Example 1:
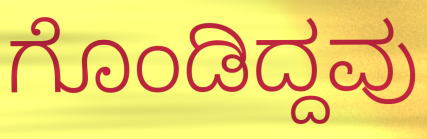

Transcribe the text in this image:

ಗೊಂಡಿದ್ದವು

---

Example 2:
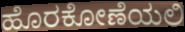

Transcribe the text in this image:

ಹೊರಕೋಣೆಯಲಿ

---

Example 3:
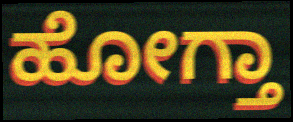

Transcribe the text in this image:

ಹೋಗ್ತಾ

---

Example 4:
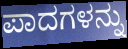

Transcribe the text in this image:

ಪಾದಗಳನ್ನು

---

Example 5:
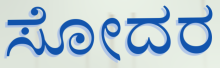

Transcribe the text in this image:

ಸೋದರ